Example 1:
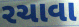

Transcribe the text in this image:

રચાવા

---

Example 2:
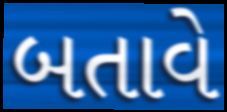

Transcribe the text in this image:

બતાવે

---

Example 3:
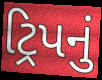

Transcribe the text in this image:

ટ્રિપનું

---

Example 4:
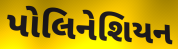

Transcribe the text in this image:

પોલિનેશિયન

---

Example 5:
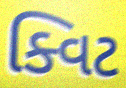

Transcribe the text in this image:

ક્વિટ